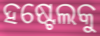
ହଷ୍ଟେଲକୁ